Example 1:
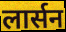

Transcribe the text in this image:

लार्सन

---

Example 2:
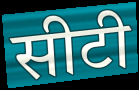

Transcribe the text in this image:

सीटी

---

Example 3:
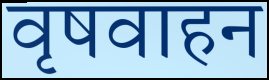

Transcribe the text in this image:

वृषवाहन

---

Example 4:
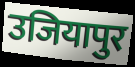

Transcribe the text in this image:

उजियापुर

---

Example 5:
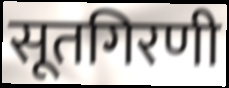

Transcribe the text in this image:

सूतगिरणी